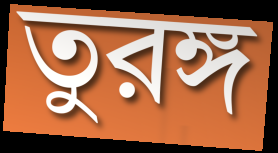
তুরঙ্গ